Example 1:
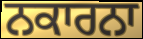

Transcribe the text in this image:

ਨਕਾਰਨਾ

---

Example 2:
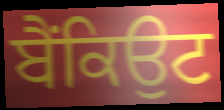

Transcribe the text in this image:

ਬੈਂਕਿਉਟ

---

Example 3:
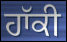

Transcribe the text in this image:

ਹਾੱਕੀ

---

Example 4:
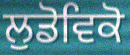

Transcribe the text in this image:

ਲੁਡੋਵਿਕੋ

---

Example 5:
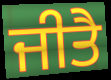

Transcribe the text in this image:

ਜੀਤੈ